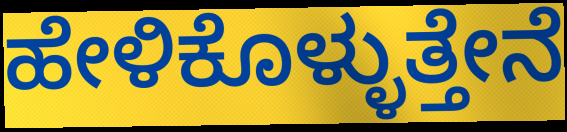
ಹೇಳಿಕೊಳ್ಳುತ್ತೇನೆ